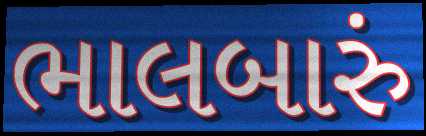
ભાલબારું